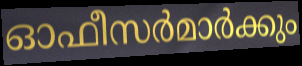
ഓഫീസർമാർക്കും